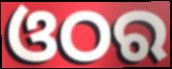
ଓଠର